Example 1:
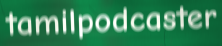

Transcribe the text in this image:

tamilpodcaster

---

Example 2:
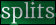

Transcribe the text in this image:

splits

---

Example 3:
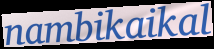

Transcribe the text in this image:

nambikaikal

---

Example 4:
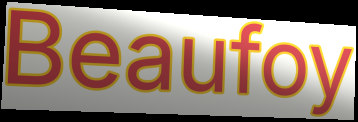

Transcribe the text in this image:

Beaufoy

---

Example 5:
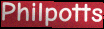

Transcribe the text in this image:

Philpotts